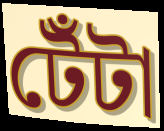
টেঁটা